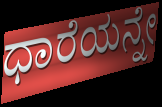
ಧಾರೆಯನ್ನೇ